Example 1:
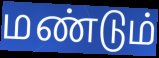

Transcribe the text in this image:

மண்டும்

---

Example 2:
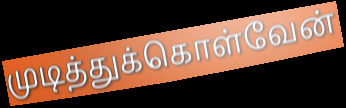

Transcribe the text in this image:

முடித்துக்கொள்வேன்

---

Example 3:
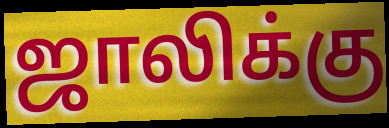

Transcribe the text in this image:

ஜாலிக்கு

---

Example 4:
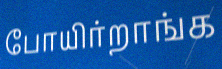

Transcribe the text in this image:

போயிர்றாங்க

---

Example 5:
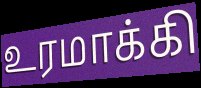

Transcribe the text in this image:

உரமாக்கி